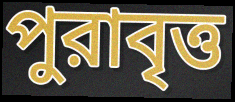
পুরাবৃত্ত